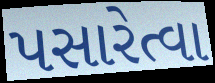
પસારેત્વા